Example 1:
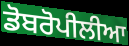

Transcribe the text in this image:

ਡੋਬਰੋਪੀਲੀਆ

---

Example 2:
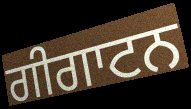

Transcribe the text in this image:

ਗੀਗਾਟਨ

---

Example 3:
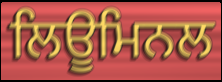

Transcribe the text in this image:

ਲਿਊਮਿਨਲ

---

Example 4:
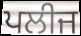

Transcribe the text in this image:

ਪਲੀਜ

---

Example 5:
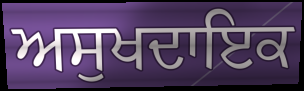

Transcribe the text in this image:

ਅਸੁਖਦਾਇਕ